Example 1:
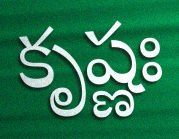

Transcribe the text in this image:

కృష్ణః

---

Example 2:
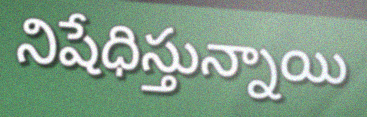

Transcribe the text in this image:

నిషేధిస్తున్నాయి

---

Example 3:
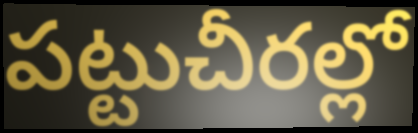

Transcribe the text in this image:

పట్టుచీరల్లో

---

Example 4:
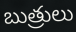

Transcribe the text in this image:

బుత్రులు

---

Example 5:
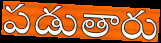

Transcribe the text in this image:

పడుతారు